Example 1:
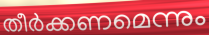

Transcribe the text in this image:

തീർക്കണമെന്നും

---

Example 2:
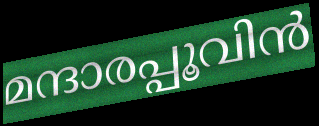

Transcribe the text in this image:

മന്ദാരപ്പൂവിൻ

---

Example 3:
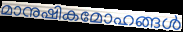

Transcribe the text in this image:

മാനുഷികമോഹങ്ങൾ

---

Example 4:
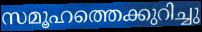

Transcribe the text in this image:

സമൂഹത്തെക്കുറിച്ചു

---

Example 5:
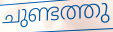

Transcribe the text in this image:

ചുണ്ടത്തു